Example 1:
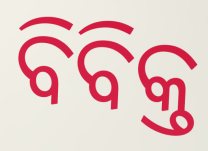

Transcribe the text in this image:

ବିବିକ୍ତ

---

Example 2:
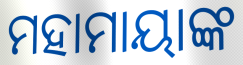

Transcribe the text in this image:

ମହାମାୟାଙ୍କ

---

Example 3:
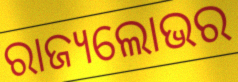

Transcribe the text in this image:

ରାଜ୍ୟଲୋଭର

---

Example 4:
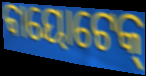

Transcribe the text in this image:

ବାୟୋଟେକ୍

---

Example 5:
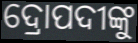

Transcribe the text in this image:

ଦ୍ରୋପଦୀଙ୍କୁ